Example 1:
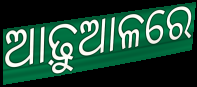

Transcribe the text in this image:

ଆଢ଼ୁଆଳରେ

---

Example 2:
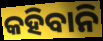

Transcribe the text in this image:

କହିବାନି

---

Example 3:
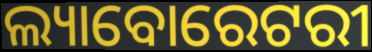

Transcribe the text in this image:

ଲ୍ୟାବୋରେଟରୀ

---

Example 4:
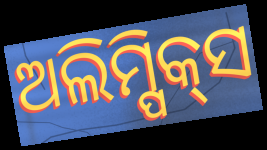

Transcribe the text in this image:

ଅଲିମ୍ପିକ୍‌ସ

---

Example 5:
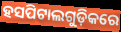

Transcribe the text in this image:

ହସପିଟାଲଗୁଡ଼ିକରେ